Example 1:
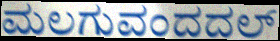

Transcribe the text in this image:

ಮಲಗುವಂದದಲ್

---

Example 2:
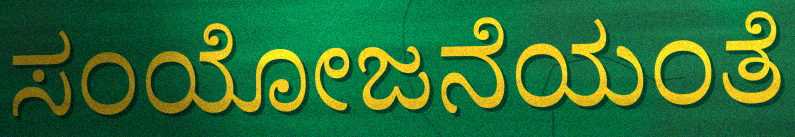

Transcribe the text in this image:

ಸಂಯೋಜನೆಯಂತೆ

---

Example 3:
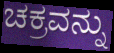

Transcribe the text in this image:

ಚಕ್ರವನ್ನು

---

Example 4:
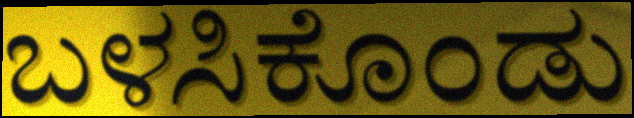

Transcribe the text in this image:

ಬಳಸಿಕೊಂಡು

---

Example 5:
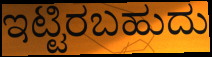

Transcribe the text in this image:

ಇಟ್ಟಿರಬಹುದು